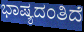
ಭಾಷ್ಯದಂತಿದೆ